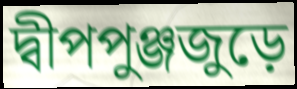
দ্বীপপুঞ্জজুড়ে